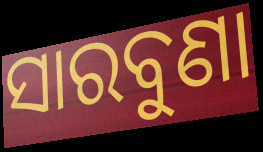
ସାରବୁଣା